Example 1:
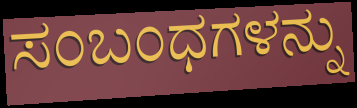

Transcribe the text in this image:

ಸಂಬಂಧಗಳನ್ನು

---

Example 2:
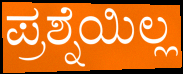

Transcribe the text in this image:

ಪ್ರಶ್ನೆಯಿಲ್ಲ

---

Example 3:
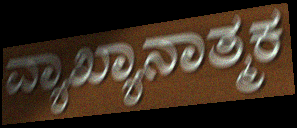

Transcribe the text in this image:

ವ್ಯಾಖ್ಯಾನಾತ್ಮಕ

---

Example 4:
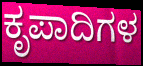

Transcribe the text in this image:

ಕೃಪಾದಿಗಳ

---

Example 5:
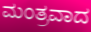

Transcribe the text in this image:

ಮಂತ್ರವಾದ